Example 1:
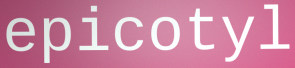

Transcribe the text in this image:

epicotyl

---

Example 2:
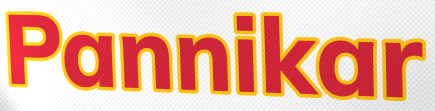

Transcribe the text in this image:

Pannikar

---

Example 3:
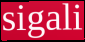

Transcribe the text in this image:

sigali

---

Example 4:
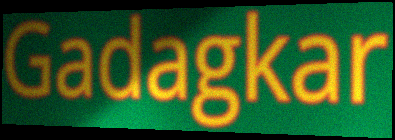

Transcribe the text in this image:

Gadagkar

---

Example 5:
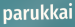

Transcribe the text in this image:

parukkai